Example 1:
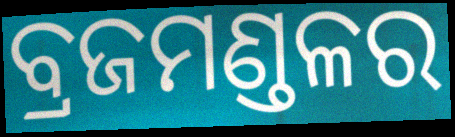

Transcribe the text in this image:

ବ୍ରଜମଣ୍ଡଳର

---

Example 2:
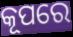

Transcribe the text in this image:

କୂପରେ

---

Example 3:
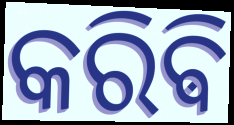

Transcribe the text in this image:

କରିଵି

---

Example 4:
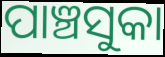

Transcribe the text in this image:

ପାଞ୍ଚସୁକା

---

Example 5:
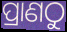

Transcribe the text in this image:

ପ୍ରାଣଠୁ